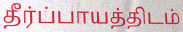
தீர்ப்பாயத்திடம்